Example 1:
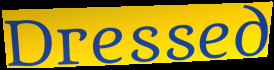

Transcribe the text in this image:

Dressed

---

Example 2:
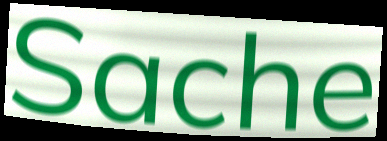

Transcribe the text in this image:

Sache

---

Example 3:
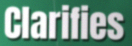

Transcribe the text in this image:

Clarifies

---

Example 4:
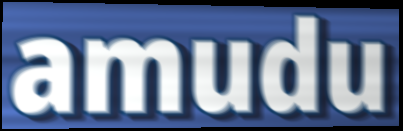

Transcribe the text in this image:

amudu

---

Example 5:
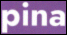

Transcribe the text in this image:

pina